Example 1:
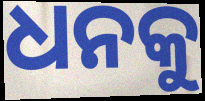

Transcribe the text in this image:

ଧନକୁ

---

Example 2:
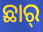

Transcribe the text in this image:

ଛାର୍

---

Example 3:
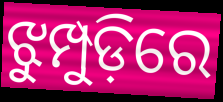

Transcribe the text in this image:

ଝୁମ୍ପୁଡ଼ିରେ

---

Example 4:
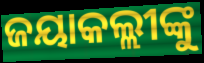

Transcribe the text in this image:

ଜୟାକଲ୍ଲୀଙ୍କୁ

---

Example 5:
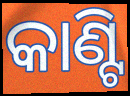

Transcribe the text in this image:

କାଣ୍ଟି